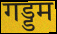
गड्डम